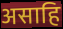
असाहि